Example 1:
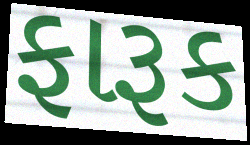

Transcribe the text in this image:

ફારૂક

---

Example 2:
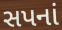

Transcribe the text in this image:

સપનાં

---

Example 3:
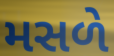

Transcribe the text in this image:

મસળે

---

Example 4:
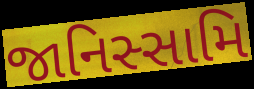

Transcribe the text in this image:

જાનિસ્સામિ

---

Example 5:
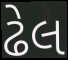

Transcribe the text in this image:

ઢેલ